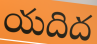
యదిద